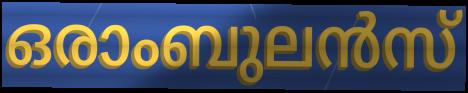
ഒരാംബുലൻസ്